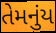
તેમનુંય